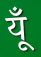
यूँ